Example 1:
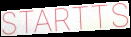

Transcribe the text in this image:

STARTTS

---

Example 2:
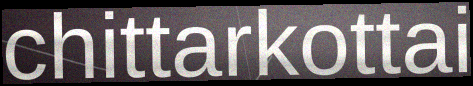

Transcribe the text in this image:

chittarkottai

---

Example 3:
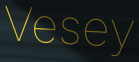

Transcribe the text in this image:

Vesey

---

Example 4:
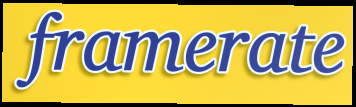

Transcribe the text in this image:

framerate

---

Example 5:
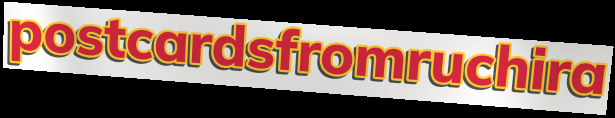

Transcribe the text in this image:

postcardsfromruchira